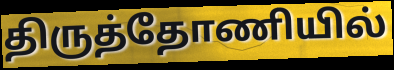
திருத்தோணியில்